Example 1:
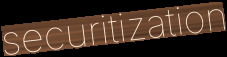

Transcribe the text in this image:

securitization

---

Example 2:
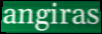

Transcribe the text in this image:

angiras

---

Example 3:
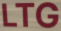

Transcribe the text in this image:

LTG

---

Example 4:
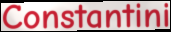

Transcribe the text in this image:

Constantini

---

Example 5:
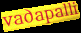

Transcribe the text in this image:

vadapalli